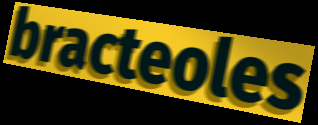
bracteoles